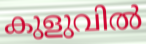
കുളുവിൽ